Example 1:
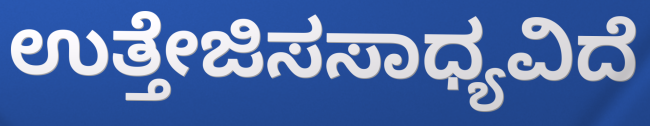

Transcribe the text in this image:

ಉತ್ತೇಜಿಸಸಾಧ್ಯವಿದೆ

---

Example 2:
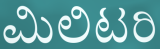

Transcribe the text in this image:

ಮಿಲಿಟರಿ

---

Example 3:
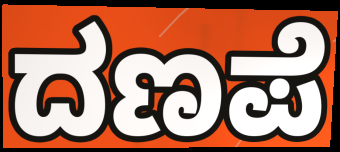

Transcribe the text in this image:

ದಣಪೆ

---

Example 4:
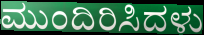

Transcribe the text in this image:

ಮುಂದಿರಿಸಿದಳು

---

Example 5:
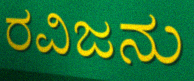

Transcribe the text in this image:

ರವಿಜನು